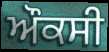
ਔਕਸੀ